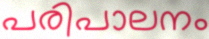
പരിപാലനം